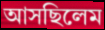
আসছিলেম